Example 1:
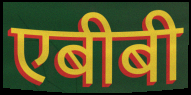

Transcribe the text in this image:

एबीबी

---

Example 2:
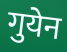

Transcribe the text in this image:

गुयेन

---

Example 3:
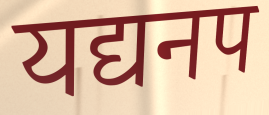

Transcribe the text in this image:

यद्यनप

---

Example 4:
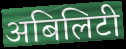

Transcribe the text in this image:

अबिलिटी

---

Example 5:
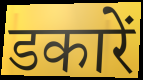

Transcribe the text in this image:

डकारें